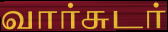
வார்சுடர்